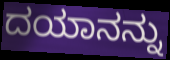
ದಯಾನನ್ನು